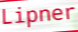
Lipner